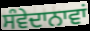
ਸੰਵੇਦਾਨਾਵਾਂ